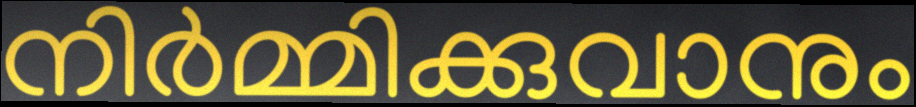
നിർമ്മിക്കുവാനും